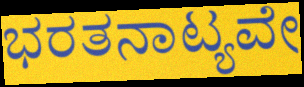
ಭರತನಾಟ್ಯವೇ